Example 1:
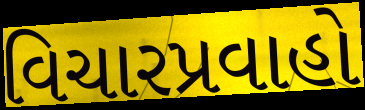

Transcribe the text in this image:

વિચારપ્રવાહો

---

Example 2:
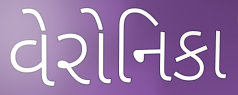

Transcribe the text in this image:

વેરોનિકા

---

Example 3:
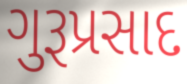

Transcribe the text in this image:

ગુરૂપ્રસાદ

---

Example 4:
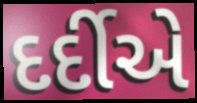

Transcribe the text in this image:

દર્દીએ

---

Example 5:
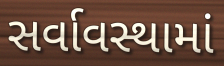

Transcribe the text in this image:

સર્વાવસ્થામાં